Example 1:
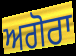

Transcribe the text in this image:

ਅਗੋਰਾ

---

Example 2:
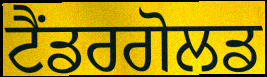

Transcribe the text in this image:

ਟੈਂਡਰਗੋਲਡ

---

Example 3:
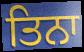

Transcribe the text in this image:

ਤਿਨਾ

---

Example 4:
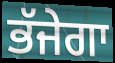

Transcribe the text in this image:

ਭੱਜੇਗਾ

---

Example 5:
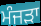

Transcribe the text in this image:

ਮੰਜੜਾ